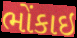
ભોંકાઇ